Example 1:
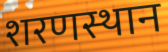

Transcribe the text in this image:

शरणस्थान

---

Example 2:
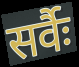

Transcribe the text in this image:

सर्वैः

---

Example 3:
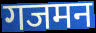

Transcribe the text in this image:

गजमन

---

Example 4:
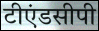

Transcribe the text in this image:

टीएंडसीपी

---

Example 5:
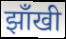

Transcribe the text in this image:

झाँखी